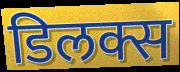
डिलक्स